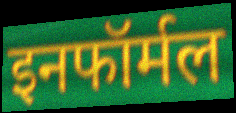
इनफॉर्मल